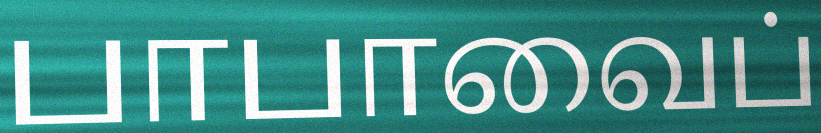
பாபாவைப்